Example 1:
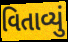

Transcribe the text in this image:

વિતાવ્યું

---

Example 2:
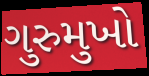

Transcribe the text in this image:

ગુરુમુખો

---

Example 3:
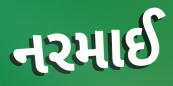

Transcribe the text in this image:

નરમાઈ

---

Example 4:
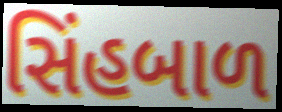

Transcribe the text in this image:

સિંહબાળ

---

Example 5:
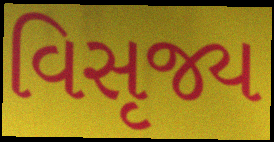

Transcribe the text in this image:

વિસૃજ્ય